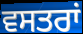
ਵਸਤਰਾਂ